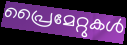
പ്രൈമേറ്റുകൾ